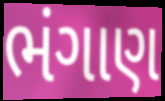
ભંગાણ